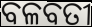
ବଳବତୀ